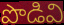
పొడివి